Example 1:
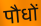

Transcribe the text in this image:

पौधों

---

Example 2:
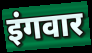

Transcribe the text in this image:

इंगवार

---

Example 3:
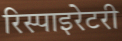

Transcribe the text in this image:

रिस्पाइरेटरी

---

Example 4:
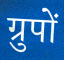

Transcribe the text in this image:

ग्रुपों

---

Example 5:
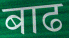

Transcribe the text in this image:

बाढ